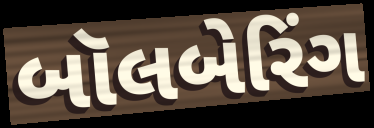
બૉલબેરિંગ